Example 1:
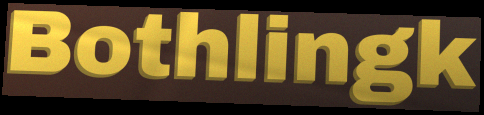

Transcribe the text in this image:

Bothlingk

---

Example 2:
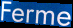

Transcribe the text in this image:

Ferme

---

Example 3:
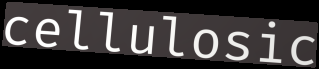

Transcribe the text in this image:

cellulosic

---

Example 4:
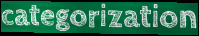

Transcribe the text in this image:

categorization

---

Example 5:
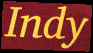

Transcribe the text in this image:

Indy